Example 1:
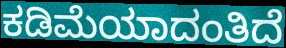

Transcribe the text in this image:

ಕಡಿಮೆಯಾದಂತಿದೆ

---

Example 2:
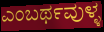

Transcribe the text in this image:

ಎಂಬರ್ಥವುಳ್ಳ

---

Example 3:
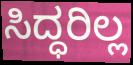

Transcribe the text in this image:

ಸಿದ್ಧರಿಲ್ಲ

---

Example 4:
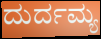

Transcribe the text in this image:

ದುರ್ದಮ್ಯ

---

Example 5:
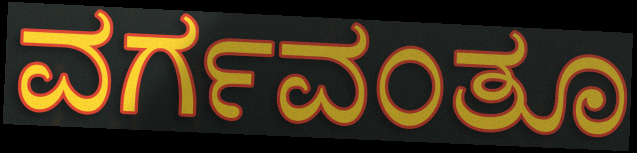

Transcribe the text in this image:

ವರ್ಗವಂತೂ